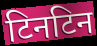
टिनटिन